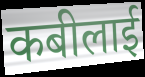
कबीलाई